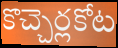
కొచ్చెర్లకోట